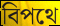
বিপথে